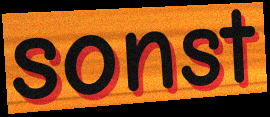
sonst